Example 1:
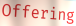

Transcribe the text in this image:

Offering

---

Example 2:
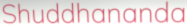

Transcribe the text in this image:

Shuddhananda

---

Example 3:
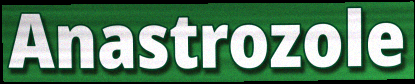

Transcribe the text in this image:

Anastrozole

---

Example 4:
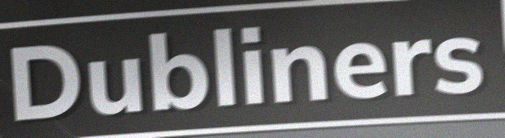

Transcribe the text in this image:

Dubliners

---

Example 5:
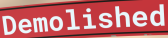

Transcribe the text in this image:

Demolished